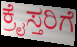
ಕ್ರೈಸ್ತರಿಗೆ